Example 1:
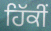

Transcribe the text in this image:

ਹਿੱਕੀਂ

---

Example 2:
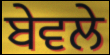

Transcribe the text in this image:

ਬੇਵਲੇ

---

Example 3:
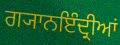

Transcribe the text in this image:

ਗ੍ਯਾਨਇੰਦ੍ਰੀਆਂ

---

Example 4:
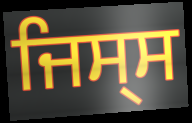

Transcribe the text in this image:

ਜਿਸ੍ਸ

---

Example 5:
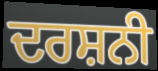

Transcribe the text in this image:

ਦਰਸ਼ਨੀ